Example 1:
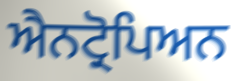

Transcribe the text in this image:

ਐਨਟ੍ਰੋਪਿਅਨ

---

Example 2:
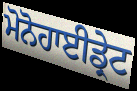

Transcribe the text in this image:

ਮੋਨੋਹਾਈਡ੍ਰੇਟ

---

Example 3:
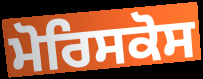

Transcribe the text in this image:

ਮੋਰਿਸਕੋਸ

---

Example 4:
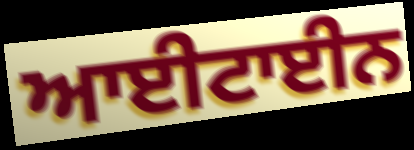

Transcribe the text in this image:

ਆਈਟਾਈਨ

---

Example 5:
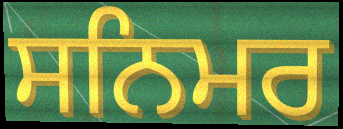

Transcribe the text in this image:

ਸਨਿਮਰ